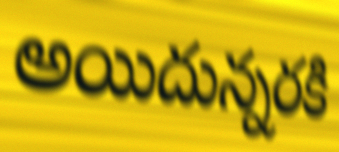
అయిదున్నరకి